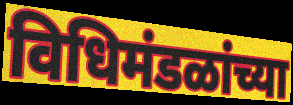
विधिमंडळांच्या